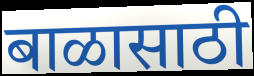
बाळासाठी